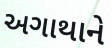
અગાથાને